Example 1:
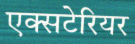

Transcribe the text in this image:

एक्सटेरियर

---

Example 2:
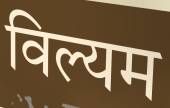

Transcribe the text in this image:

विल्यम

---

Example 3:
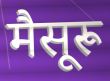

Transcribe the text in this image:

मैसूरू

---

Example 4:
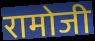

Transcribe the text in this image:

रामोजी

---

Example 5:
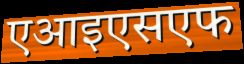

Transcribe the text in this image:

एआइएसएफ